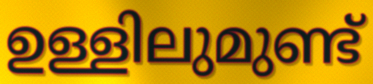
ഉള്ളിലുമുണ്ട്